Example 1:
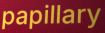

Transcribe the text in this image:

papillary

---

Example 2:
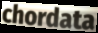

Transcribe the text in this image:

chordata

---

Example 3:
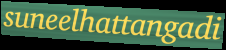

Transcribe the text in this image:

suneelhattangadi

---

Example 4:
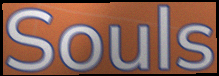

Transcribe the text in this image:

Souls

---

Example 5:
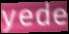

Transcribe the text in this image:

yede